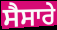
ਸੈਸਾਰੇ